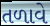
તળાવે